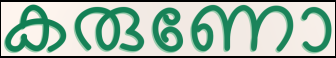
കരുണോ